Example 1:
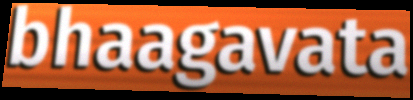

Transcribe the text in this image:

bhaagavata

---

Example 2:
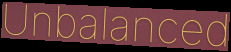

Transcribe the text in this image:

Unbalanced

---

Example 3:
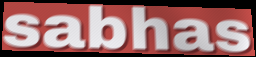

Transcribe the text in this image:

sabhas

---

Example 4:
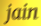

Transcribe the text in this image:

jain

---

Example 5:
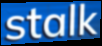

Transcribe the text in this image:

stalk